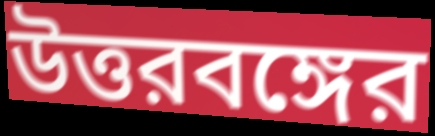
উত্তরবঙ্গের